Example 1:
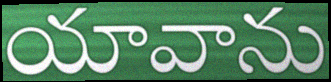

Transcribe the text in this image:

యావాను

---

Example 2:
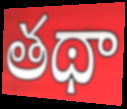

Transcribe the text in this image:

తథా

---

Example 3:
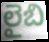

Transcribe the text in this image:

లైబి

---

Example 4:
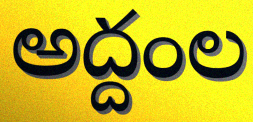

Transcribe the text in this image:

అద్దంల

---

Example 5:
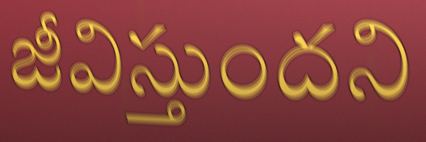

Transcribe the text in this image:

జీవిస్తుందని